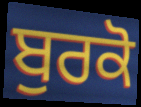
ਬੁਰਕੋ